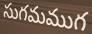
సుగమముగ